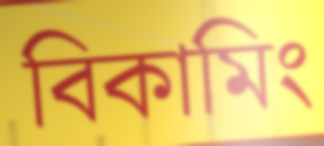
বিকামিং